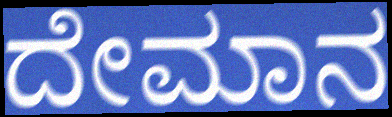
ದೇಮಾನ